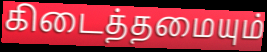
கிடைத்தமையும்